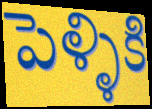
పెళ్ళికి